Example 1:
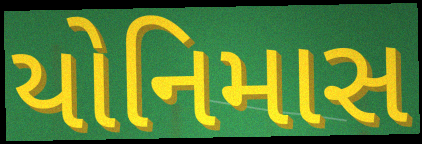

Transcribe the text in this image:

યોનિમાસ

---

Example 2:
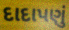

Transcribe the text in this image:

દાદાપણું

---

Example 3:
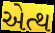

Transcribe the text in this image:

એત્થ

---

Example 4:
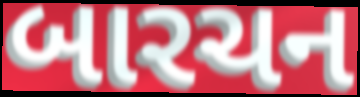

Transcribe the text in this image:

બારચન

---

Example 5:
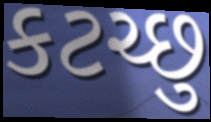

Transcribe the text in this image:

કટચ્છુ